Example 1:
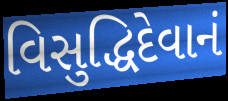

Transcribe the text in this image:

વિસુદ્ધિદેવાનં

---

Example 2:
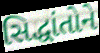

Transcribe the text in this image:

સિદ્ધાંતોને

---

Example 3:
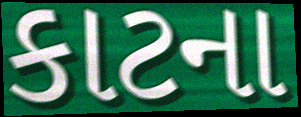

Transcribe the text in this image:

કાટના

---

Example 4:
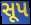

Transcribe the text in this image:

સૂપ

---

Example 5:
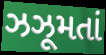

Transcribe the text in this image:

ઝઝૂમતાં